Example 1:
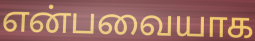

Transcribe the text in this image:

என்பவையாக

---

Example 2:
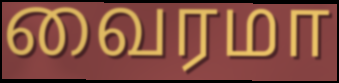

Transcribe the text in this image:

வைரமா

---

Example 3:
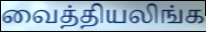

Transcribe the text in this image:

வைத்தியலிங்க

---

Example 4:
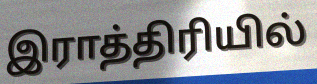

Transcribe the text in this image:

இராத்திரியில்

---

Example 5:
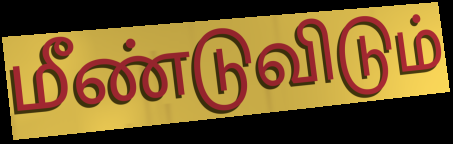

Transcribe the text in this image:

மீண்டுவிடும்